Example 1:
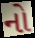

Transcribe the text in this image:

નો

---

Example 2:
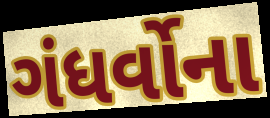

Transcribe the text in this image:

ગંધર્વોના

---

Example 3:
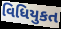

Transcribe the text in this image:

વિધિયુકત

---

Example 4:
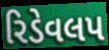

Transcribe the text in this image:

રિડેવલપ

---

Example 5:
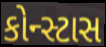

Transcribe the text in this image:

કોન્સ્ટાસ